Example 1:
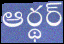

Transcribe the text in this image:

ఆర్థర్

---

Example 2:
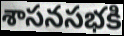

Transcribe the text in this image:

శాసనసభకి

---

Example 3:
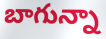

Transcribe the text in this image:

బాగున్నా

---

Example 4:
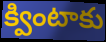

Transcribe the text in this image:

క్వింటాకు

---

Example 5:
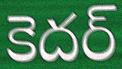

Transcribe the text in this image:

కెదర్